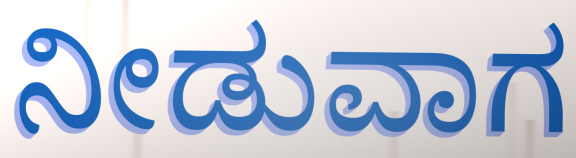
ನೀಡುವಾಗ